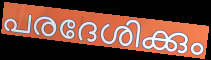
പരദേശിക്കും